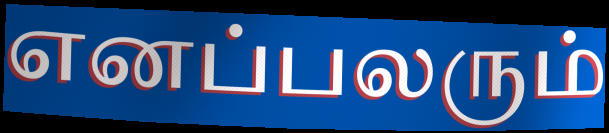
எனப்பலரும்